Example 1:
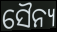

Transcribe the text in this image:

ସୈନ୍ୟ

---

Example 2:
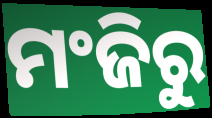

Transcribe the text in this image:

ମଂଜିରୁ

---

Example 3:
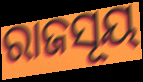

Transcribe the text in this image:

ରାଜସୂୟ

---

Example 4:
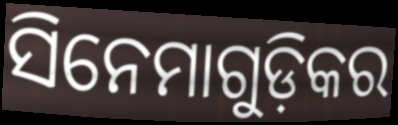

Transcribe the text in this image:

ସିନେମାଗୁଡ଼ିକର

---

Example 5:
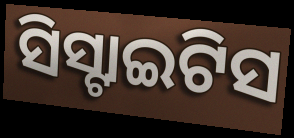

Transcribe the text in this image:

ସିସ୍ଟାଇଟିସ